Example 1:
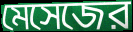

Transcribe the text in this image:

মেসেজের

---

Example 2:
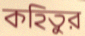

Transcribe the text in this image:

কহিতুর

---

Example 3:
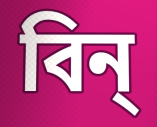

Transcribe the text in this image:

বিন্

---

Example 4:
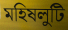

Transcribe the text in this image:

মহিষলুটি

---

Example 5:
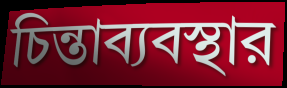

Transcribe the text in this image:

চিন্তাব্যবস্থার